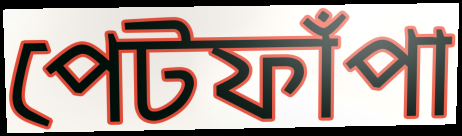
পেটফাঁপা